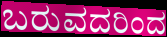
ಬರುವದರಿಂದ